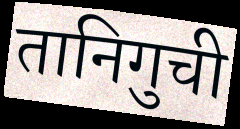
तानिगुची